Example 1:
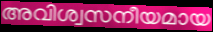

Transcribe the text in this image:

അവിശ്വസനീയമായ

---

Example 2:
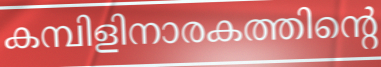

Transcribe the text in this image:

കമ്പിളിനാരകത്തിന്റെ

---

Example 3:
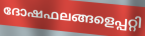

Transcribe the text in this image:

ദോഷഫലങ്ങളെപ്പറ്റി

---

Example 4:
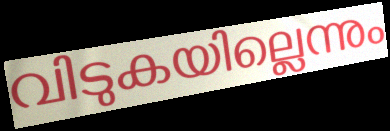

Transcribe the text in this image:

വിടുകയില്ലെന്നും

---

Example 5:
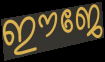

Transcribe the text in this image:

ഈജേ